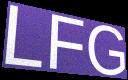
LFG